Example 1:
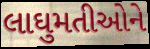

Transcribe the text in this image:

લાઘુમતીઓને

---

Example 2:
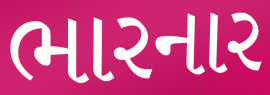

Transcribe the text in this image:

ભારનાર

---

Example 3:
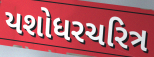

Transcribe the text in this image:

યશોધરચરિત્ર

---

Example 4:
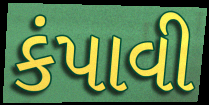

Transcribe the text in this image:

કંપાવી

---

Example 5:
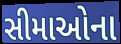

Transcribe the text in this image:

સીમાઓના